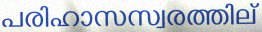
പരിഹാസസ്വരത്തില്